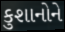
કુશાનોને